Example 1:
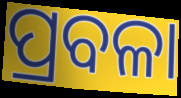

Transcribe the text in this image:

ପ୍ରବଳା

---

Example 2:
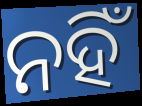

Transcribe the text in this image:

ନହିଁ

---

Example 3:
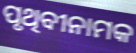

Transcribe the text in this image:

ପୃଥିବୀନାମକ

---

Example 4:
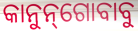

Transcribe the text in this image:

କାନୁନ୍‌ଗୋବାବୁ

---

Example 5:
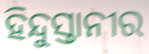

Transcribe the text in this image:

ହିନ୍ଦୁସ୍ତାନୀର